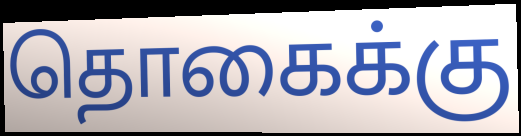
தொகைக்கு